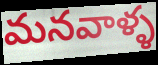
మనవాళ్ళ